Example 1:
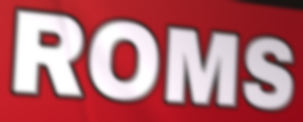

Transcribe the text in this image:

ROMS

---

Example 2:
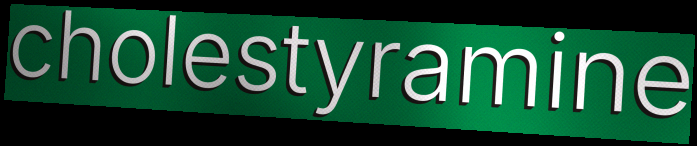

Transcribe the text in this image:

cholestyramine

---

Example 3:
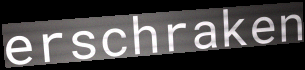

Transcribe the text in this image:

erschraken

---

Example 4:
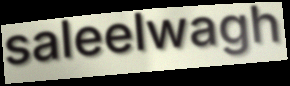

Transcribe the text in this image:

saleelwagh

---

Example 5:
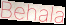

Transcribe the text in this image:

Behala